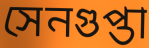
সেনগুপ্তা